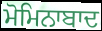
ਮੋਮਿਨਾਬਾਦ